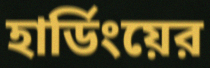
হার্ডিংয়ের